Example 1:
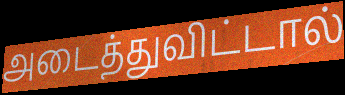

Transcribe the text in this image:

அடைத்துவிட்டால்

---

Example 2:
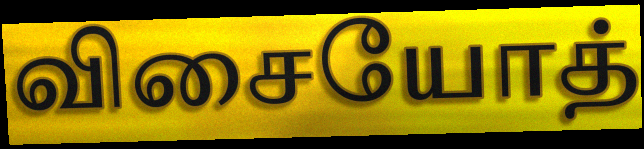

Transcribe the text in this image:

விசையோத்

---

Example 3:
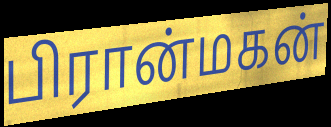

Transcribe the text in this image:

பிரான்மகன்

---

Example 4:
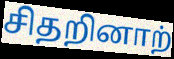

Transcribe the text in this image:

சிதறினாற்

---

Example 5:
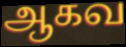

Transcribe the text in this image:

ஆகவ